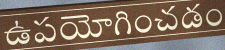
ఉపయోగించడం